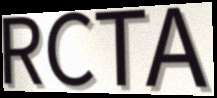
RCTA